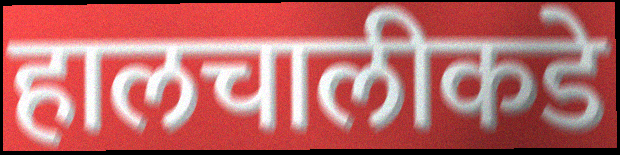
हालचालीकडे